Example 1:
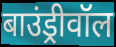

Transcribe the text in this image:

बाउंड्रीवॉल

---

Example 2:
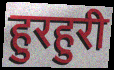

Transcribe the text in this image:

हुरहुरी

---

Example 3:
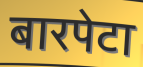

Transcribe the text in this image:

बारपेटा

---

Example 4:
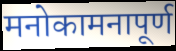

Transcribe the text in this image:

मनोकामनापूर्ण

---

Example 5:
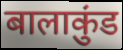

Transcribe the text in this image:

बालाकुंड